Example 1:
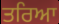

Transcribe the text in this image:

ਤਰਿਆ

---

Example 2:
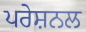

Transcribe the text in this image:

ਪਰੇਸ਼ਨਲ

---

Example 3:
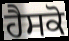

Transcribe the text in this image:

ਹੈਸਕੋ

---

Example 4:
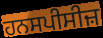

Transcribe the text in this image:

ਹਨਸਪੀਸੀਜ਼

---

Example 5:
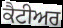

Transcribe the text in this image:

ਕੈਟੀਅਰ